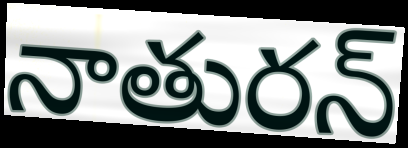
నాతురన్